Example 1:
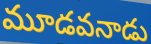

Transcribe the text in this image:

మూడవనాడు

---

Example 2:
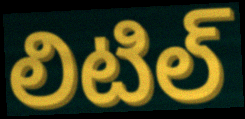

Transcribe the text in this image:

లిటిల్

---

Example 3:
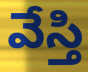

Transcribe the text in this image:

వేస్తి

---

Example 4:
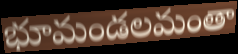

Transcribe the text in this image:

భూమండలమంతా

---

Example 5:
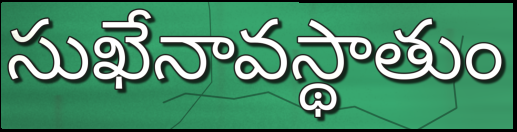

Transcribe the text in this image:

సుఖేనావస్థాతుం